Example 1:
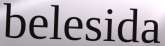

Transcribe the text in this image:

belesida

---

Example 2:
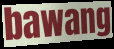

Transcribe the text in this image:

bawang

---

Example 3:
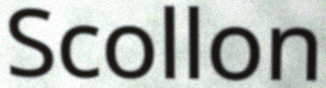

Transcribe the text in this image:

Scollon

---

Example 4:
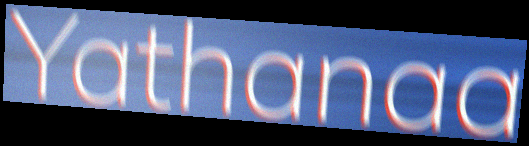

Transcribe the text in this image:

Yathanaa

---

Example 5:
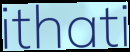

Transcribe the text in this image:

ithati